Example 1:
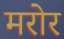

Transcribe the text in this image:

मरोर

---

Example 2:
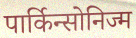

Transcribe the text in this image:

पार्किन्सोनिज्म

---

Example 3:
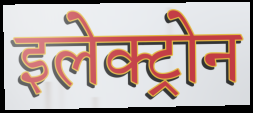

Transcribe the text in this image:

इलेक्ट्रोन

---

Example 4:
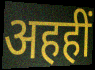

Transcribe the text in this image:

अहहीं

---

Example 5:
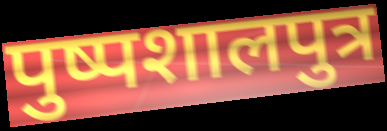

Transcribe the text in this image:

पुष्पशालपुत्र